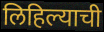
लिहिल्याची